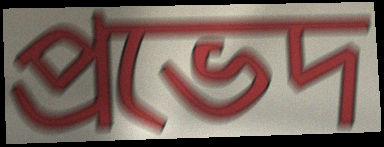
প্ৰভেদ